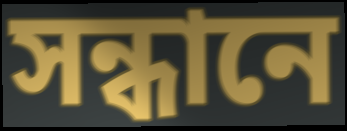
সন্ধানে